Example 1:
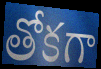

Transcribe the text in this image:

తోకగా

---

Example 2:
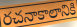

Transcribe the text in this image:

రచనాకాలానికి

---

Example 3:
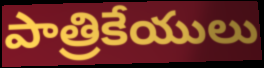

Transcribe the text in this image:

పాత్రికేయులు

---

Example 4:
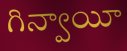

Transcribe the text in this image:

గిన్వాయీ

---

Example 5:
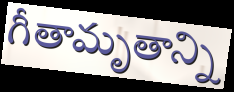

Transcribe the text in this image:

గీతామృతాన్ని